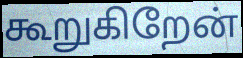
கூறுகிறேன்